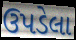
ઉપડેલા